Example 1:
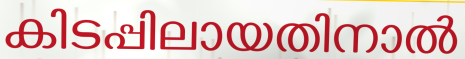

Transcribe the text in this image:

കിടപ്പിലായതിനാൽ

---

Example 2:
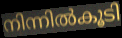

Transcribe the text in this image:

നിന്നിൽകൂടി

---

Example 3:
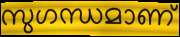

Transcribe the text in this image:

സുഗന്ധമാണ്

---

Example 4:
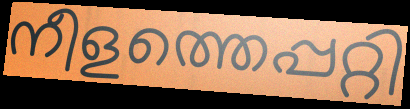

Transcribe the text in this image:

നീളത്തെപ്പറ്റി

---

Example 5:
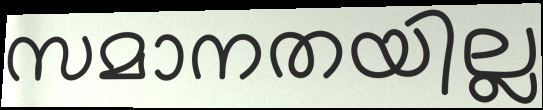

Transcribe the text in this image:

സമാനതയില്ല